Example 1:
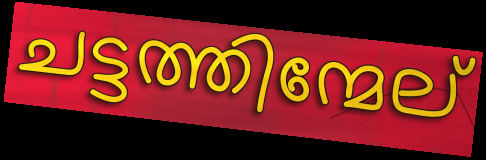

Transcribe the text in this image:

ചട്ടത്തിന്മേല്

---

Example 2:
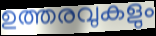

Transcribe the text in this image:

ഉത്തരവുകളും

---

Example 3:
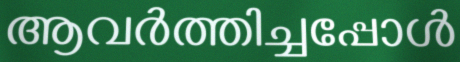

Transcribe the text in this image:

ആവർത്തിച്ചപ്പോൾ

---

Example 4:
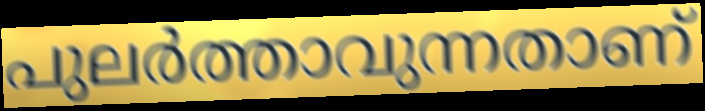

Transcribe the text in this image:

പുലർത്താവുന്നതാണ്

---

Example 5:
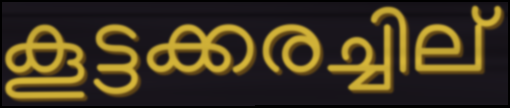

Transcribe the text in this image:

കൂട്ടക്കരച്ചില്